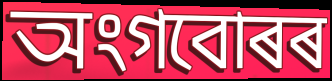
অংগবোৰৰ